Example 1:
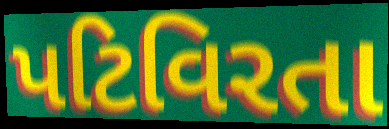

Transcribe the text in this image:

પટિવિરતા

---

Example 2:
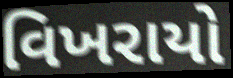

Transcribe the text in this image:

વિખરાયો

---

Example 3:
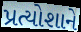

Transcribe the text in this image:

પ્રત્યોશાને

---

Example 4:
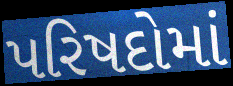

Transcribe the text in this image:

પરિષદોમાં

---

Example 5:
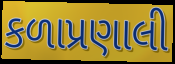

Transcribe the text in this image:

કળાપ્રણાલી